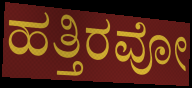
ಹತ್ತಿರವೋ